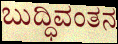
ಬುದ್ಧಿವಂತನ